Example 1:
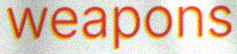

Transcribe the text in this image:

weapons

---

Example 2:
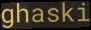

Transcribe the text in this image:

ghaski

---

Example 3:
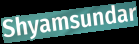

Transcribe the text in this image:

Shyamsundar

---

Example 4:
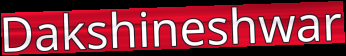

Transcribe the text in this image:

Dakshineshwar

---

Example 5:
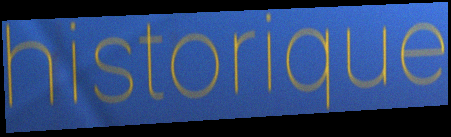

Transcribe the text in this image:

historique